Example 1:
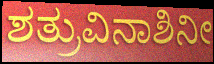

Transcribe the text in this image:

ಶತ್ರುವಿನಾಶಿನೀ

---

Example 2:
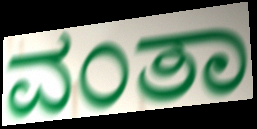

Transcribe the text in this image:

ವಂತಾ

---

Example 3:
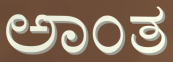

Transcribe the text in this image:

ಅಾಂತ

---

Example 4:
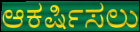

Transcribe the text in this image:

ಆಕರ್ಷಿಸಲು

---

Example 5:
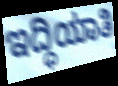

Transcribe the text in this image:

ಇದ್ಧಿಯಾತಿ